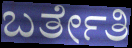
ಬರ್ತೇತಿ